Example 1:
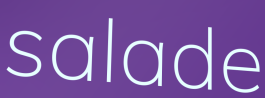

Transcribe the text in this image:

salade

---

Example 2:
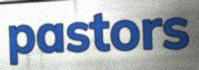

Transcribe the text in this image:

pastors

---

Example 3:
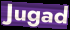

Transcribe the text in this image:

Jugad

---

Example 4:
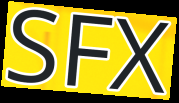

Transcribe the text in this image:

SFX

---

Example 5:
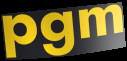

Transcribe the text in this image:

pgm